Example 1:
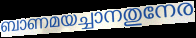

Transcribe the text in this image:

ബാണമയച്ചാനതുനേര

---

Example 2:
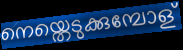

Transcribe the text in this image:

നെയ്തെടുക്കുമ്പോള്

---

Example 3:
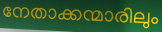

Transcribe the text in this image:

നേതാക്കന്മാരിലും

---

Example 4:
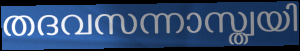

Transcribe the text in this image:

തദവസന്നാസ്ത്വയി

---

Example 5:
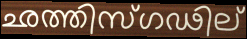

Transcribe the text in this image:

ഛത്തിസ്ഗഢില്